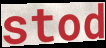
stod